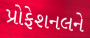
પ્રોફેશનલને